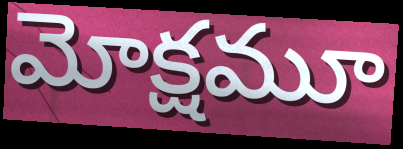
మోక్షమూ